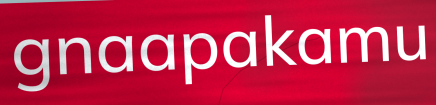
gnaapakamu